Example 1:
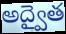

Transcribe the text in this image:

అద్వైత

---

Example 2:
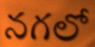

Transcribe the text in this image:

నగలో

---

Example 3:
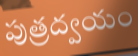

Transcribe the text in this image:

పుత్రద్వయం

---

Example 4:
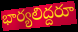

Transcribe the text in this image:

భార్యలిద్దరూ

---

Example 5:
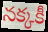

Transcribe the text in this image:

నక్కకీ